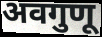
अवगुणू